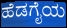
ಹೆಡಗೈಯ